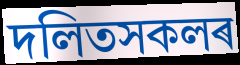
দলিতসকলৰ